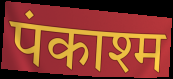
पंकाश्म